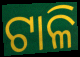
ଟାଳି